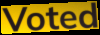
Voted